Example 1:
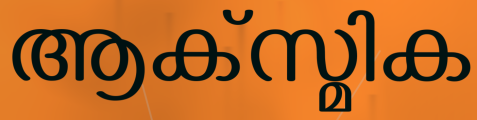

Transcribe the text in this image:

ആക്സ്മിക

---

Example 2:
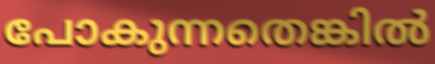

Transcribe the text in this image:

പോകുന്നതെങ്കിൽ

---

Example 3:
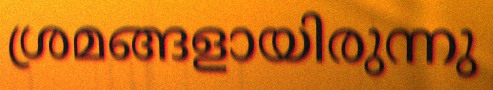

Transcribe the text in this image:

ശ്രമങ്ങളായിരുന്നു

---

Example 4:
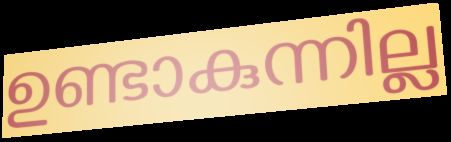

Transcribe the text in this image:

ഉണ്ടാകുന്നില്ല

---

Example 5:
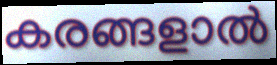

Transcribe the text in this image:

കരങ്ങളാൽ